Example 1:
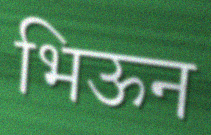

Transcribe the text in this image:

भिऊन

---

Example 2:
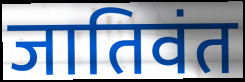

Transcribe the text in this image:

जातिवंत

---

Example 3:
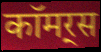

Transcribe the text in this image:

कॉमर्स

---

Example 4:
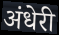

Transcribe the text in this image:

अंधेरी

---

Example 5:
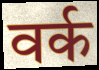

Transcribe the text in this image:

वर्क